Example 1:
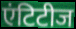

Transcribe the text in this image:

एंटिटीज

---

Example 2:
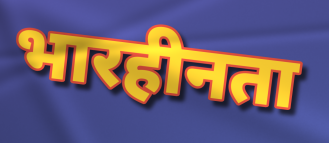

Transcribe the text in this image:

भारहीनता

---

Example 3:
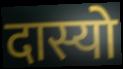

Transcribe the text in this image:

दास्यो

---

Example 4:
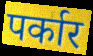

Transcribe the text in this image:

पर्कार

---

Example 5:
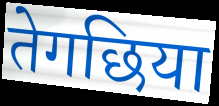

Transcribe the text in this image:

तेगछिया